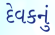
દેવકનું